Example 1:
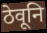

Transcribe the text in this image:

ठेवूनि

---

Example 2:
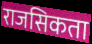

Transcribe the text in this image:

राजसिकता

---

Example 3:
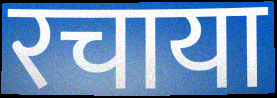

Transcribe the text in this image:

रचाया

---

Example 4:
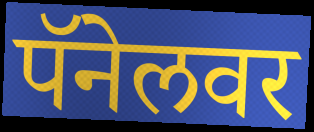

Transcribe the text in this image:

पॅनेलवर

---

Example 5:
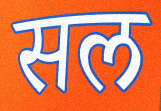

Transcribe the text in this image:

सल